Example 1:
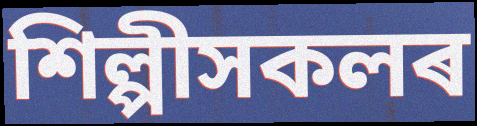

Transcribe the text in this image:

শিল্পীসকলৰ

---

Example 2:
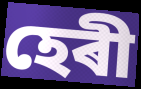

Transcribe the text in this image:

হেৰী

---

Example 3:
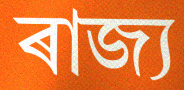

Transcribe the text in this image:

ৰাজ্য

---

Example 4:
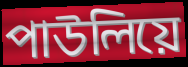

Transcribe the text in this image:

পাউলিয়ে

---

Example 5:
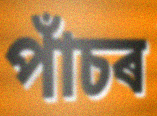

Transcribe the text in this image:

পাঁচৰ